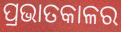
ପ୍ରଭାତକାଳର